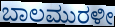
ಬಾಲಮುರಳೀ